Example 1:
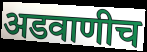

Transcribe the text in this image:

अडवाणीच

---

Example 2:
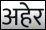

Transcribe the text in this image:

अहेर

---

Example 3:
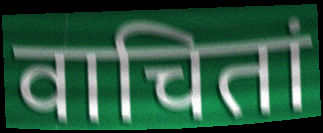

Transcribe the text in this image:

वाचितां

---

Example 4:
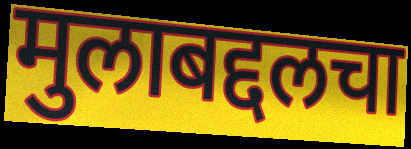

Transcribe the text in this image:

मुलाबद्दलचा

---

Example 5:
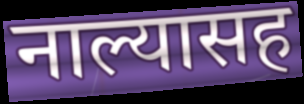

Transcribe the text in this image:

नाल्यासह